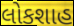
લોકશાહ